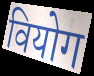
वियोग